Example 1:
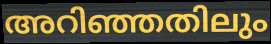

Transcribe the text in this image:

അറിഞ്ഞതിലും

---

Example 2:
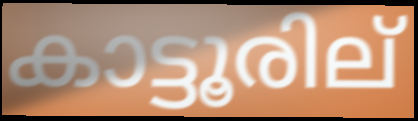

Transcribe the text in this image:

കാട്ടൂരില്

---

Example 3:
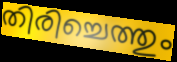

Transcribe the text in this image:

തിരിച്ചെത്തും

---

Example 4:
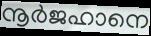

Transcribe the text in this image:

നൂർജഹാനെ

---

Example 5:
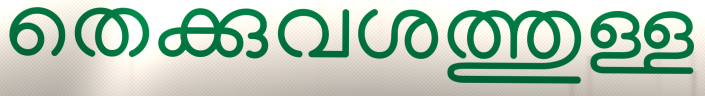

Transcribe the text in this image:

തെക്കുവശത്തുള്ള